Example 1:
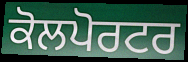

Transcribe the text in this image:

ਕੋਲਪੋਰਟਰ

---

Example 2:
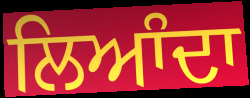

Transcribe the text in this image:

ਲਿਆੰਦਾ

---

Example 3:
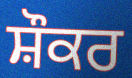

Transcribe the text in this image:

ਸ਼ੌਕਰ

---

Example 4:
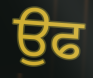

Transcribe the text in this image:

ਉਫ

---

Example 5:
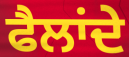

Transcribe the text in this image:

ਫੈਲਾਂਦੇ